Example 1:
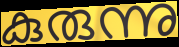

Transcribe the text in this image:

കുരുന്നു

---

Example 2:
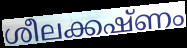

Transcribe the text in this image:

ശീലക്കഷ്ണം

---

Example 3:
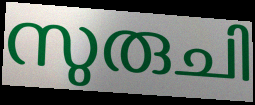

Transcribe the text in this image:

സുരുചി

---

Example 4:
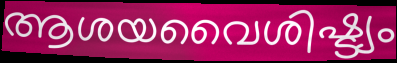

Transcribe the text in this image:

ആശയവൈശിഷ്ട്യം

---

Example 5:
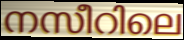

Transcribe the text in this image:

നസീറിലെ